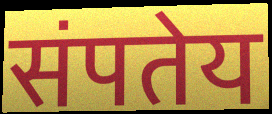
संपतेय